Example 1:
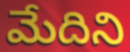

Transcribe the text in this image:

మేదిని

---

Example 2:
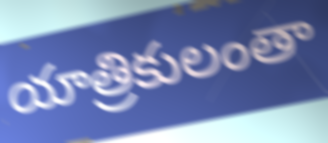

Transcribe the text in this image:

యాత్రికులంతా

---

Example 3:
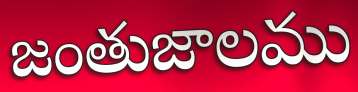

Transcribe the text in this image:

జంతుజాలము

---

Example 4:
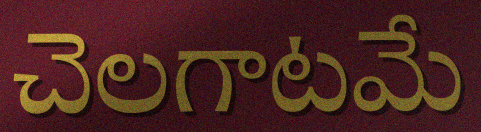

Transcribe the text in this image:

చెలగాటమే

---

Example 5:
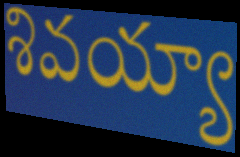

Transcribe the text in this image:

శివయ్యా